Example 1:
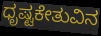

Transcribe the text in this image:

ಧೃಷ್ಟಕೇತುವಿನ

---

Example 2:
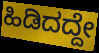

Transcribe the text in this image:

ಹಿಡಿದದ್ದೇ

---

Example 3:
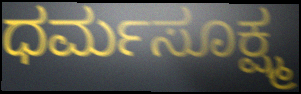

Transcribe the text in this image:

ಧರ್ಮಸೂಕ್ಷ್ಮ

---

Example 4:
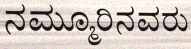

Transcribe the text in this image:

ನಮ್ಮೂರಿನವರು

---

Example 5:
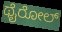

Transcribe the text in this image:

ಥೈರೋಲ್